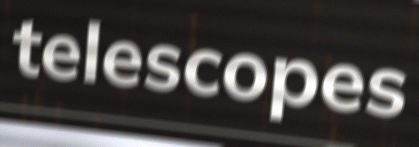
telescopes